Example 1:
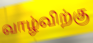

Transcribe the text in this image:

வாழ்விற்கு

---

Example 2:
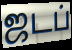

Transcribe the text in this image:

ஜடப்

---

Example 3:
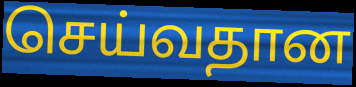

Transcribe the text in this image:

செய்வதான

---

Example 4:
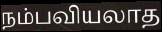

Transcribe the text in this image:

நம்பவியலாத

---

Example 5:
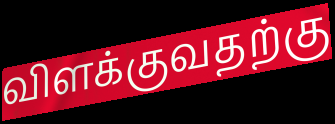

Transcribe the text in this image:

விளக்குவதற்கு